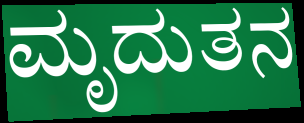
ಮೃದುತನ